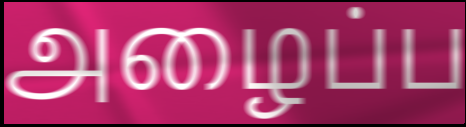
அழைப்ப